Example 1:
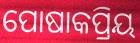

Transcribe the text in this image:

ପୋଷାକପ୍ରିୟ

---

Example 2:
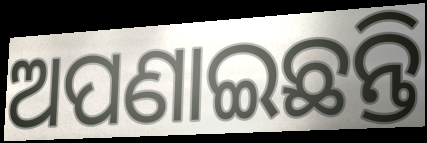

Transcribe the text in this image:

ଅପଣାଇଛନ୍ତି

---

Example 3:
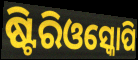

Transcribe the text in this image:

ଷ୍ଟିରିଓସ୍କୋପି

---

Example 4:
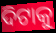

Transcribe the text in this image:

ଦିଟାକୁ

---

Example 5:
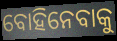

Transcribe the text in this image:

ବୋହିନେବାକୁ